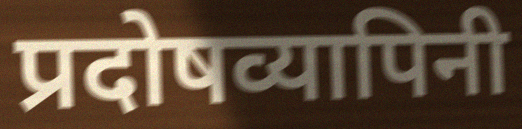
प्रदोषव्यापिनी